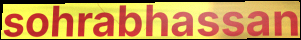
sohrabhassan